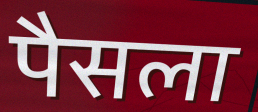
पैसला